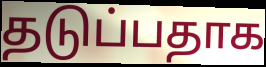
தடுப்பதாக